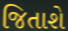
જિતાશે